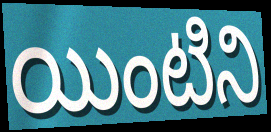
యింటిని